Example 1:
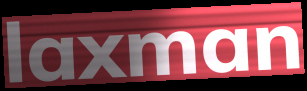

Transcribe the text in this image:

laxman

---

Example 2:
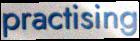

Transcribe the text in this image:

practising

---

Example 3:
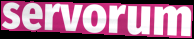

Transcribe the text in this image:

servorum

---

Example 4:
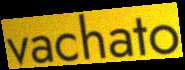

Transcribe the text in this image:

vachato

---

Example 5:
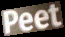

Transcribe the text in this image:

Peet